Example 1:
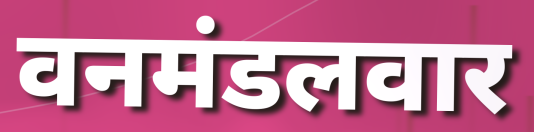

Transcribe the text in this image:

वनमंडलवार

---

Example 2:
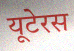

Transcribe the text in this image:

यूटेरस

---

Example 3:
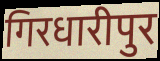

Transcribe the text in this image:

गिरधारीपुर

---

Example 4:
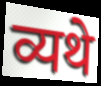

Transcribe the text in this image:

व्यथे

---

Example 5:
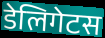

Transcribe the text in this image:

डेलिगेटस